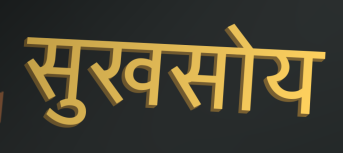
सुखसोय